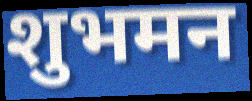
शुभमन